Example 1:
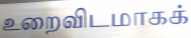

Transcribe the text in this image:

உறைவிடமாகக்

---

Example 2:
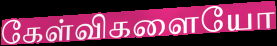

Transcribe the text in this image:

கேள்விகளையோ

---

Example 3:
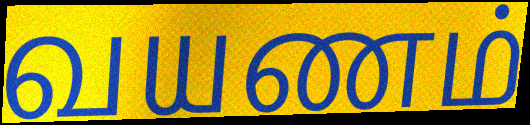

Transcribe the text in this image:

வயணம்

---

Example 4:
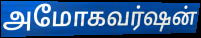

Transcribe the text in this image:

அமோகவர்ஷன்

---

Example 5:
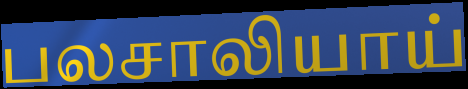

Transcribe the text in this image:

பலசாலியாய்